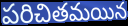
పరిచితమయిన